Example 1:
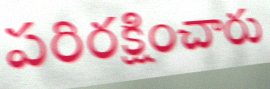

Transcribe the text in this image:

పరిరక్షించారు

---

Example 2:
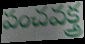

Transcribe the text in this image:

పంచవక్త్ర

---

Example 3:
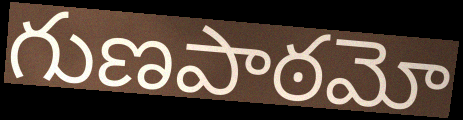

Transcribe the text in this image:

గుణపాఠమో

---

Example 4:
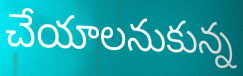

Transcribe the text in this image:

చేయాలనుకున్న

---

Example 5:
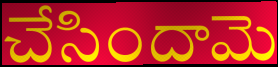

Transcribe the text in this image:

చేసిందామె